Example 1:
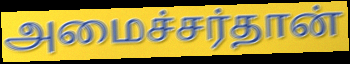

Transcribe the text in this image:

அமைச்சர்தான்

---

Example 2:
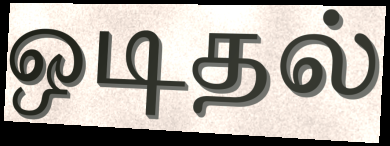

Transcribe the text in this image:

ஒடிதல்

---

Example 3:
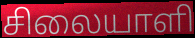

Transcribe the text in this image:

சிலையாளி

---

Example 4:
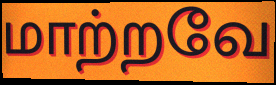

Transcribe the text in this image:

மாற்றவே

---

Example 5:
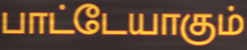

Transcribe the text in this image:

பாட்டேயாகும்